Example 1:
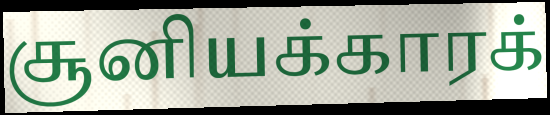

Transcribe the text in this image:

சூனியக்காரக்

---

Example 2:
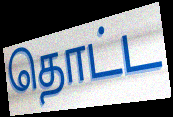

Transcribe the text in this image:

தொட்ட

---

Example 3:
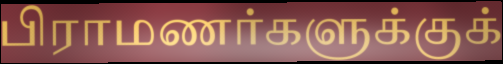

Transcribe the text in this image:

பிராமணர்களுக்குக்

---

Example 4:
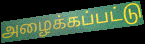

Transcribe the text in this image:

அழைக்கப்பட்டு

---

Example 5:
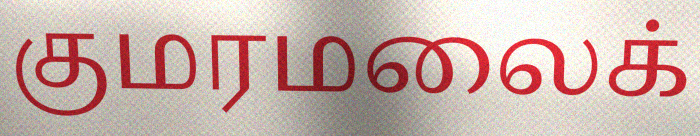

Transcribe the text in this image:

குமரமலைக்